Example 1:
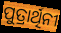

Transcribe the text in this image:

ପୁତ୍ରାର୍ଥିନୀ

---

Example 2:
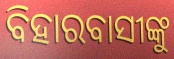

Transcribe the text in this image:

ବିହାରବାସୀଙ୍କୁ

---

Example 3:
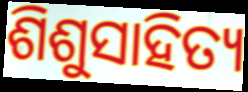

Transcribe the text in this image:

ଶିଶୁସାହିତ୍ୟ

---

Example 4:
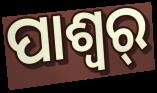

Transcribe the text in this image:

ପାଶ୍ୱର୍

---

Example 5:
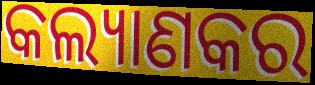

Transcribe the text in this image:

କଲ୍ୟାଣକର